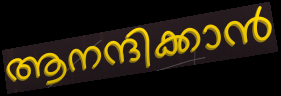
ആനന്ദിക്കാൻ